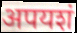
अपयशं